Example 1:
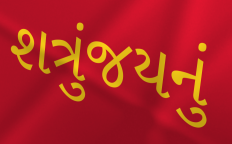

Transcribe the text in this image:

શત્રુંજયનું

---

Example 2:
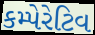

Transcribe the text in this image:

કમ્પેરેટિવ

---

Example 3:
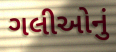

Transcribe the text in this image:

ગલીઓનું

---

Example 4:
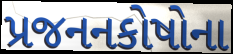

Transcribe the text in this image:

પ્રજનનકોષોના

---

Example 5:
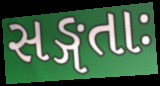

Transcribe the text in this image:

સઙ્ગતાઃ